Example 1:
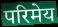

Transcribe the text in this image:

परिमेय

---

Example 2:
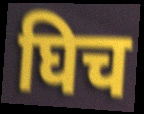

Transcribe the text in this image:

घिच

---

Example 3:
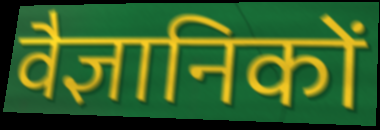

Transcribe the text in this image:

वैज्ञानिकों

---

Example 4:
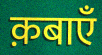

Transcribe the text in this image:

क़बाएँ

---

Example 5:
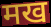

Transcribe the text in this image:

मख